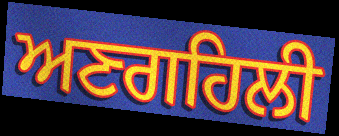
ਅਣਗਹਿਲੀ